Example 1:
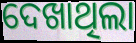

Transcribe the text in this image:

ଦେଖାଥିଲା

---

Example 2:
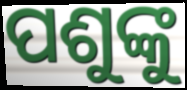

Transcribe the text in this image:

ପଶୁଙ୍କୁ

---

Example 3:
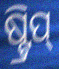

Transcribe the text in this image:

ଷ୍ଟ୍ରିପ୍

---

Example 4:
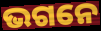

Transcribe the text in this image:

ଭଗନେ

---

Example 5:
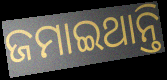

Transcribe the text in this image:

ଜମାଇଥାନ୍ତି